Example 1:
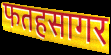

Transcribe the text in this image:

फतहसागर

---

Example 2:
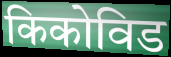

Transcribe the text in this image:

किकोविड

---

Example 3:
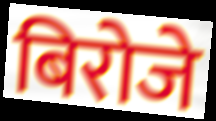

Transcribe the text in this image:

बिरोजे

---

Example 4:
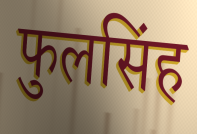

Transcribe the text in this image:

फुलसिंह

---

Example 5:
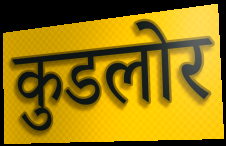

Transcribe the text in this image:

कुडलोर